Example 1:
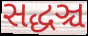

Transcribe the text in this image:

સદ્ધઞ્ચ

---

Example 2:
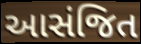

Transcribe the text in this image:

આસંજિત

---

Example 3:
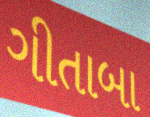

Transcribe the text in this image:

ગીતાબા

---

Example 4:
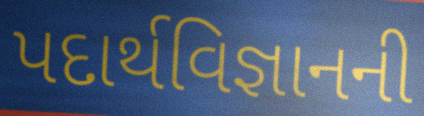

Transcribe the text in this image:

પદાર્થવિજ્ઞાનની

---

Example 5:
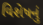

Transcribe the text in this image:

વિશેષનું